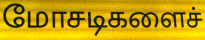
மோசடிகளைச்